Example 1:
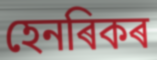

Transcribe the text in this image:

হেনৰিকৰ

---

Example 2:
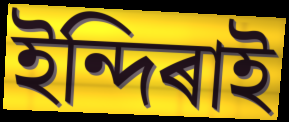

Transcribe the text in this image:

ইন্দিৰাই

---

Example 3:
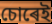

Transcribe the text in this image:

চোৰেই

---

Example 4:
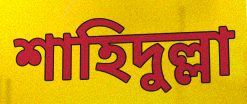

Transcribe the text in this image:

শাহিদুল্লা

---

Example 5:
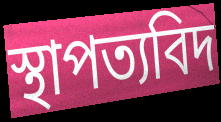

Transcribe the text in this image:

স্থাপত্যবিদ